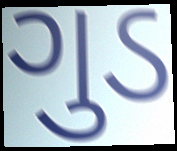
ગુડ